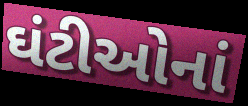
ઘંટીઓનાં